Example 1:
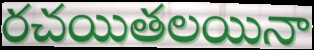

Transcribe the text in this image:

రచయితలయినా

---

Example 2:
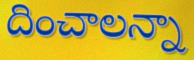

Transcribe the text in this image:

దించాలన్నా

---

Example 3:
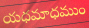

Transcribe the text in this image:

యధమాధముం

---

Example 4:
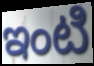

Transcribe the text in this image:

ఇంటి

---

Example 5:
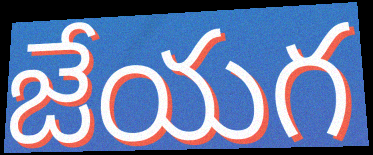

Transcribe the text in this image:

జేయగ